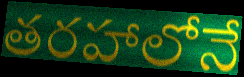
తరహాలోనే